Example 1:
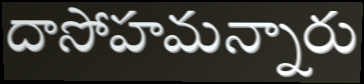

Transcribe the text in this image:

దాసోహమన్నారు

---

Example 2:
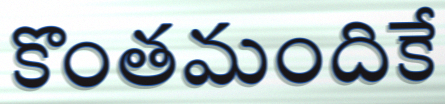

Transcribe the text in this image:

కొంతమందికే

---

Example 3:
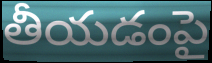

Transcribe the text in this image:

తీయడంపై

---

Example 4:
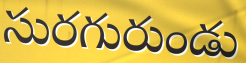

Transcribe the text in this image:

సురగురుండు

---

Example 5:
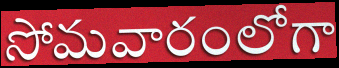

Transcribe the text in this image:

సోమవారంలోగా